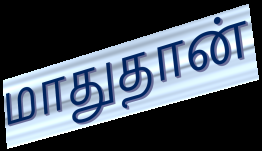
மாதுதான்